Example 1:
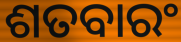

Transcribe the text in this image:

ଶତବାରଂ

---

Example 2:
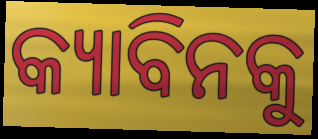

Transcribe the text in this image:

କ୍ୟାବିନକୁ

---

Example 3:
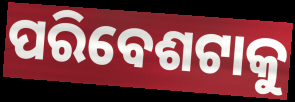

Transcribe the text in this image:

ପରିବେଶଟାକୁ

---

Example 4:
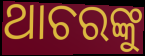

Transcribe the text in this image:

ଥାଚରଙ୍କୁ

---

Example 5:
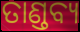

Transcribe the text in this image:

ତାଣ୍ଡବ୍ୟ